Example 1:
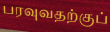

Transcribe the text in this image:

பரவுவதற்குப்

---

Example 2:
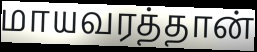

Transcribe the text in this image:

மாயவரத்தான்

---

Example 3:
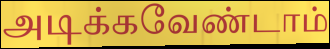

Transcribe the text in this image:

அடிக்கவேண்டாம்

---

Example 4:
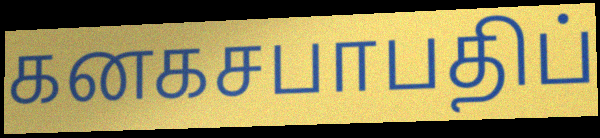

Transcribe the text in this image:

கனகசபாபதிப்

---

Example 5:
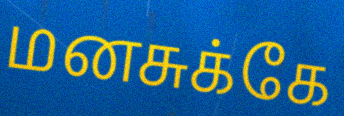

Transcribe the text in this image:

மனசுக்கே